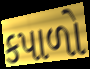
કપાળો